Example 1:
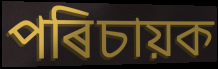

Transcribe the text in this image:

পৰিচায়ক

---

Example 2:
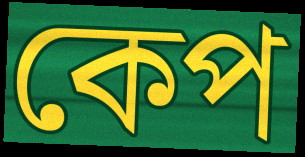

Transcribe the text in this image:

কেপ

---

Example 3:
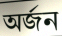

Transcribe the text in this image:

অৰ্জন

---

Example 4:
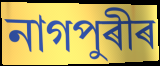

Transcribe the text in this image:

নাগপুৰীৰ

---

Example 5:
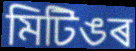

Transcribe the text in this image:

মিটিঙৰ